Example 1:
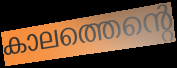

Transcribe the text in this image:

കാലത്തെന്റെ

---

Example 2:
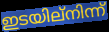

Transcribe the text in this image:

ഇടയില്നിന്ന്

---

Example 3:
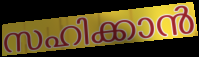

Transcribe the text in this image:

സഹിക്കാൻ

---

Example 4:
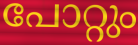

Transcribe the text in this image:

പോറ്റും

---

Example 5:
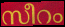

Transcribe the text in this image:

സീറം